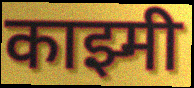
काझ्मी